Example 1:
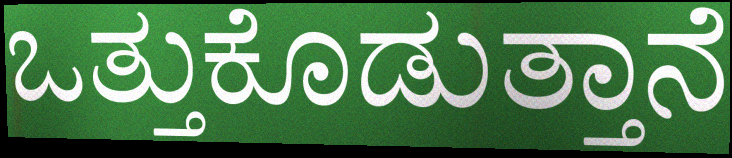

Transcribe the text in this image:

ಒತ್ತುಕೊಡುತ್ತಾನೆ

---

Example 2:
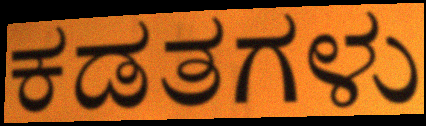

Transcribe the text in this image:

ಕಡತಗಳು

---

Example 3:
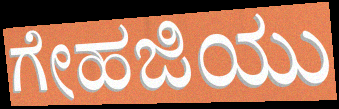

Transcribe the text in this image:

ಗೇಹಜಿಯು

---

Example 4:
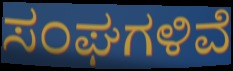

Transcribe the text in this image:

ಸಂಘಗಳಿವೆ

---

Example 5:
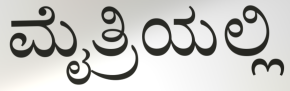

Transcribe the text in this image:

ಮೈತ್ರಿಯಲ್ಲಿ